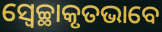
ସ୍ୱେଚ୍ଛାକୃତଭାବେ